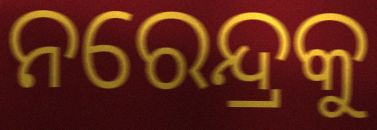
ନରେନ୍ଦ୍ରକୁ